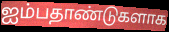
ஐம்பதாண்டுகளாக